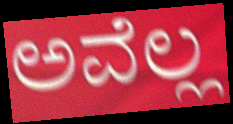
ಅವೆಲ್ಲ